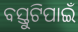
ବସ୍ତୁଟିପାଇଁ